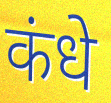
कंधे